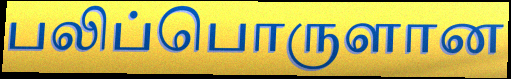
பலிப்பொருளான